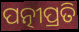
ପତ୍ନୀପ୍ରତି